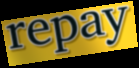
repay